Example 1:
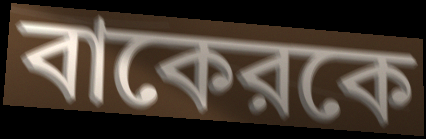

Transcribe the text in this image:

বাকেরকে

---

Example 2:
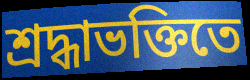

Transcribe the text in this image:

শ্রদ্ধাভক্তিতে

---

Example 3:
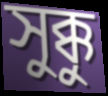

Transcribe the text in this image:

সুক্কু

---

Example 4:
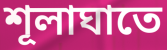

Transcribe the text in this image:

শূলাঘাতে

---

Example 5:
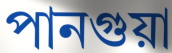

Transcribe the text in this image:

পানগুয়া